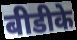
बीडीके